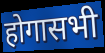
होगासभी